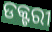
ଡକ୍ଟରୀ